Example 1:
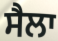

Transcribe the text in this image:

ਸੈਲਾ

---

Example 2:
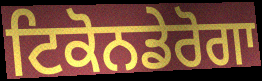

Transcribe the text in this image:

ਟਿਕੋਨਡੇਰੋਗਾ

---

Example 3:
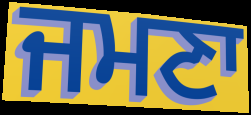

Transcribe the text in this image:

ਜਮਣਾ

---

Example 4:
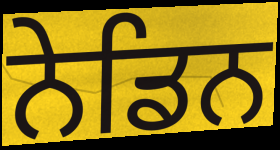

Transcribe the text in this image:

ਨੇਡਿਨ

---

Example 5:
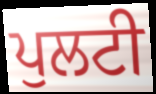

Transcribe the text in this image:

ਪੁਲਟੀ